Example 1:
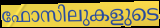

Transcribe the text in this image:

ഫോസിലുകളുടെ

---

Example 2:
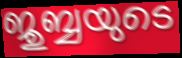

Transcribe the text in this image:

ജുബ്ബയുടെ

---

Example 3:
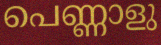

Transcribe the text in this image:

പെണ്ണാളു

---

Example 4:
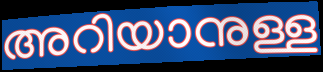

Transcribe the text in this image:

അറിയാനുള്ള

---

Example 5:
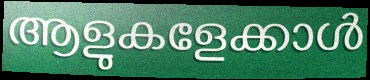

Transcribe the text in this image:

ആളുകളേക്കാൾ